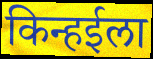
किन्हईला